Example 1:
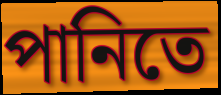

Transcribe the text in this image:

পানিতে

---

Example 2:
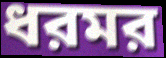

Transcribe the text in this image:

ধরমর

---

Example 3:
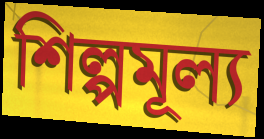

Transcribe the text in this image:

শিল্পমূল্য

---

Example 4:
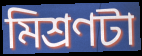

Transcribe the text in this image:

মিশ্রণটা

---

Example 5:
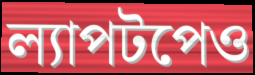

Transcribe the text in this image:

ল্যাপটপেও